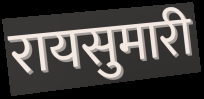
रायसुमारी